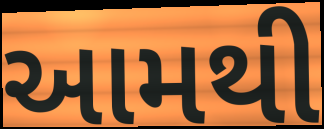
આમથી